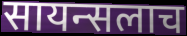
सायन्सलाच